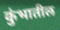
कुंभातील